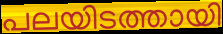
പലയിടത്തായി